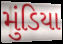
મુંડિયા